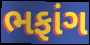
ભફાંગ